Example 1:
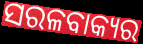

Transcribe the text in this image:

ସରଳବାକ୍ୟର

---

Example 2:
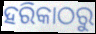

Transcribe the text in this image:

ହରିକାଠରୁ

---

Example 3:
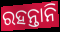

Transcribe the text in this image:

ରହନ୍ତାନି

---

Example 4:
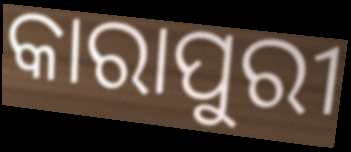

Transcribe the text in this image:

କାରାପୁରୀ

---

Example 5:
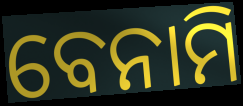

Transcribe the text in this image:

ବେନାମି